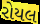
રોયલ